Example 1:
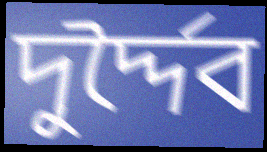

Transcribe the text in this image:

দুর্দ্দৈব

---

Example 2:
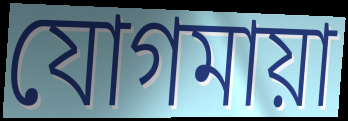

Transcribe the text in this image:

যোগমায়া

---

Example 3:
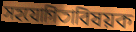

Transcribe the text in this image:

সহযোগিতাবিষয়ক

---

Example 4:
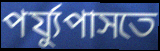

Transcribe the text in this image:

পর্য্যুপাসতে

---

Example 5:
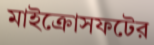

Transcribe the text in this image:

মাইক্রোসফটের